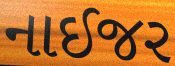
નાઈજર